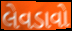
લેવડાવો